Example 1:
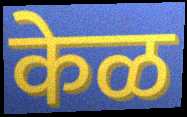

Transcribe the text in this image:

केळ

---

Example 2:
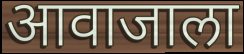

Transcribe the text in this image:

आवाजाला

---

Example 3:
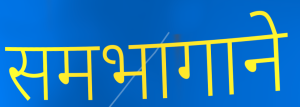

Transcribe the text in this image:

समभागाने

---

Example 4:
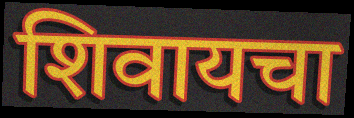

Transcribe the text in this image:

शिवायचा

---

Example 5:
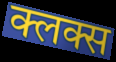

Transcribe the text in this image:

क्लक्स